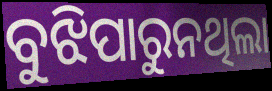
ବୁଝିପାରୁନଥିଲା